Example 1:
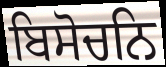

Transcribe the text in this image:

ਬਿਸੋਚਨਿ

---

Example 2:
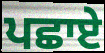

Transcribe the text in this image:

ਪਛਾਏ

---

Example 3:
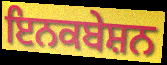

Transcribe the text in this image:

ਇਨਕਬੇਸ਼ਨ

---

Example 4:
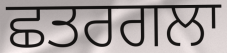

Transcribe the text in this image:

ਛਤਰਗਲਾ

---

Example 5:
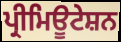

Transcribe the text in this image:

ਪ੍ਰੀਮਿਊਟੇਸ਼ਨ